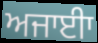
ਅਜਾਈਾ